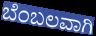
ಬೆಂಬಲವಾಗಿ